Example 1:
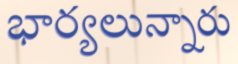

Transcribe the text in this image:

భార్యలున్నారు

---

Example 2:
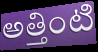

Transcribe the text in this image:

అత్తింటి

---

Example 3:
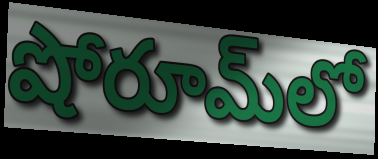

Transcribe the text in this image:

షోరూమ్‌లో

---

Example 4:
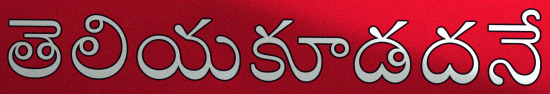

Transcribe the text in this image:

తెలియకూడదనే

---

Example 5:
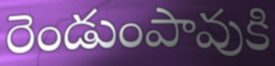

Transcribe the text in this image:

రెండుంపావుకి